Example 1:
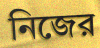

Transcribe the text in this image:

নিজের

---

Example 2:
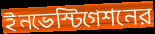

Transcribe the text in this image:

ইনভেস্টিগেশনের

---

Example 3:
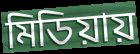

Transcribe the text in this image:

মিডিয়ায়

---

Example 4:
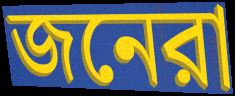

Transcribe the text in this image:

জনেরা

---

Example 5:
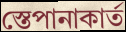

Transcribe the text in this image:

স্তেপানাকার্ত